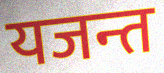
यजन्त